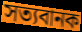
সত্যবানক